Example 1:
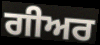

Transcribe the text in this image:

ਗੀਅਰ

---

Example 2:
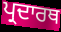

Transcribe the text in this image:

ਪ੍ਰਦਾਰਥ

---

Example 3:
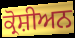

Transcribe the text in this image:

ਕ੍ਰੋਸ਼ੀਅਨ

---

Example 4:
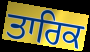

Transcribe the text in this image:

ਤਾਰਿਕ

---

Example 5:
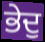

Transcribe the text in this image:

ਭੇਦੁ